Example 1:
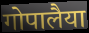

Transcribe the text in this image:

गोपालैया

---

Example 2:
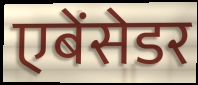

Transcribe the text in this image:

एबेंसेडर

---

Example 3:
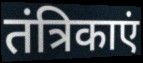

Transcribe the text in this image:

तंत्रिकाएं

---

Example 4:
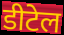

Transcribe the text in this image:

डीटेल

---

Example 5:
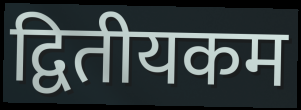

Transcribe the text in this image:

द्वितीयकम